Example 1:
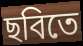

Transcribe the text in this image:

ছবিতে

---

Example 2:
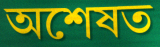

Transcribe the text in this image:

অশেষত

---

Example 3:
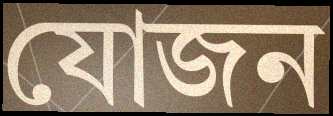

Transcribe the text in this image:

যোজন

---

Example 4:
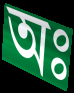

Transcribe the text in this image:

অঃ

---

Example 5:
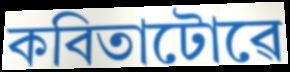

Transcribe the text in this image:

কবিতাটোৱে